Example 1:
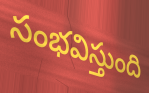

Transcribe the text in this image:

సంభవిస్తుంది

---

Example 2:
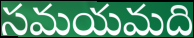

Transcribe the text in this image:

సమయమది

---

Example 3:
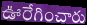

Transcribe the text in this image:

ఊరేగించారు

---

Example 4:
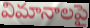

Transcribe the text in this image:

విమానాలపై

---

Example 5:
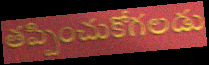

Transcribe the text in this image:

తప్పించుకోగలడు